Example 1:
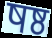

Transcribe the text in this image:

षष्ठ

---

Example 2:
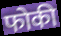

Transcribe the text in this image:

फोकी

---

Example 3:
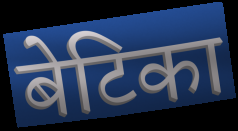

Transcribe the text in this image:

बेटिका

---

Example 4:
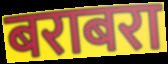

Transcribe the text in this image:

बराबरा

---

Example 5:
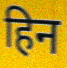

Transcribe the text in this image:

हिन